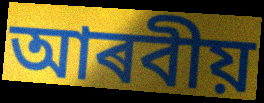
আৰবীয়